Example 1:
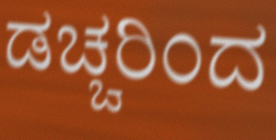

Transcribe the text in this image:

ಡಚ್ಚರಿಂದ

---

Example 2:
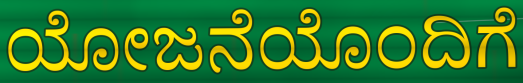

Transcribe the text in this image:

ಯೋಜನೆಯೊಂದಿಗೆ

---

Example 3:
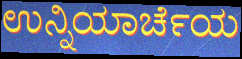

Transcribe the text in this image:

ಉನ್ನಿಯಾರ್ಚೆಯ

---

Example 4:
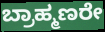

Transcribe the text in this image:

ಬ್ರಾಹ್ಮಣರೇ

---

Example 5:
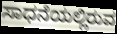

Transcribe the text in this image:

ಸಾಧನೆಯಲ್ಲಿರುವ